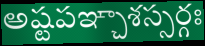
అష్టపఞ్చాశస్సర్గః